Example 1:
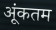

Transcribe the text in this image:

अूंकतम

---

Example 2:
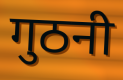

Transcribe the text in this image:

गुठनी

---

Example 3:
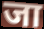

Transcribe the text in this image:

जा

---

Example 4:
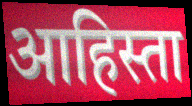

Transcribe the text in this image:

आहिस्‍ता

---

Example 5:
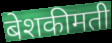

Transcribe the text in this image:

बेशकीमती